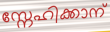
സ്നേഹിക്കാന്